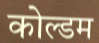
कोल्डम